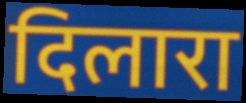
दिलारा